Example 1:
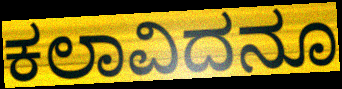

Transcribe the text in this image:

ಕಲಾವಿದನೂ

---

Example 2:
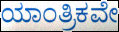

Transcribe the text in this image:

ಯಾಂತ್ರಿಕವೇ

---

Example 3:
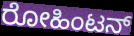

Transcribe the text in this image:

ರೋಹಿಂಟನ್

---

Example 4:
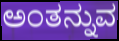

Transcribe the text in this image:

ಅಂತನ್ನುವ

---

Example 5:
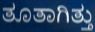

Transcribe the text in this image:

ತೂತಾಗಿತ್ತು